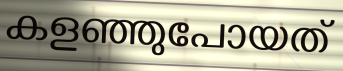
കളഞ്ഞുപോയത്